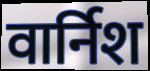
वार्निश